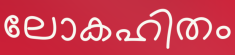
ലോകഹിതം